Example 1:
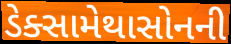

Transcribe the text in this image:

ડેક્સામેથાસોનની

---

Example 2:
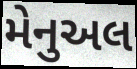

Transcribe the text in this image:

મેનુઅલ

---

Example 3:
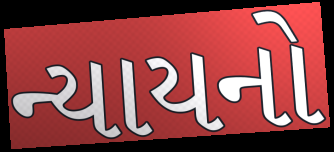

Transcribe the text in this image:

ન્યાયનો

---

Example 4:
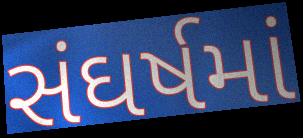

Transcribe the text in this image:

સંઘર્ષમાં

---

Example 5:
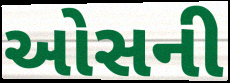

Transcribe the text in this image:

ઓસની